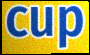
cup